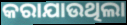
କରାଯାଉଥିଲା